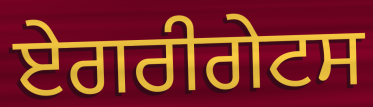
ਏਗਰੀਗੇਟਸ